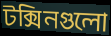
টক্সিনগুলো